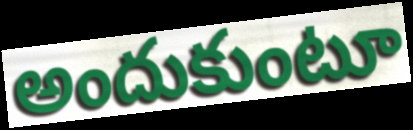
అందుకుంటూ